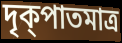
দৃক্পাতমাত্র